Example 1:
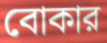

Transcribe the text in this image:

বোকার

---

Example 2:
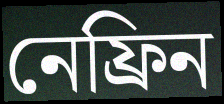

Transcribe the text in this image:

নেফ্রিন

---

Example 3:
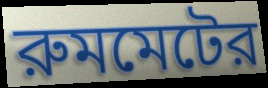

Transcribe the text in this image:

রুমমেটের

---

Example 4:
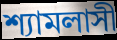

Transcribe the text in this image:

শ্যামলাসী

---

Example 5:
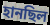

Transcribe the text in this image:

হানছিল